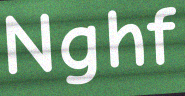
Nghf